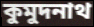
কুমুদনাথ